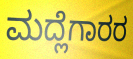
ಮದ್ಲೆಗಾರರ